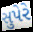
સુપેરે